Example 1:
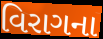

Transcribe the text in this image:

વિરાગના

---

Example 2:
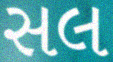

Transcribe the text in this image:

સલ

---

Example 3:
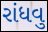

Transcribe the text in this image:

રાંધવુ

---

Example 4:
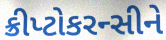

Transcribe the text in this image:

ક્રીપ્ટોકરન્સીને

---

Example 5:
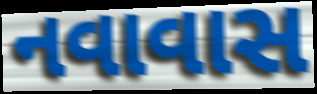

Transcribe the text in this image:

નવાવાસ